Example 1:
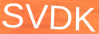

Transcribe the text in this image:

SVDK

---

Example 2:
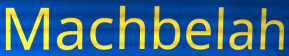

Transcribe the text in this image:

Machbelah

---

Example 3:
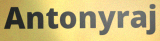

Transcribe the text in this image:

Antonyraj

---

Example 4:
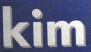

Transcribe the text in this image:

kim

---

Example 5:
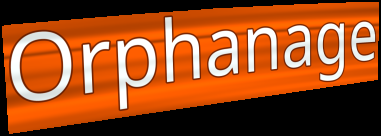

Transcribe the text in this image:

Orphanage